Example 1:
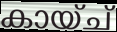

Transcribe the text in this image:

കായ്ച്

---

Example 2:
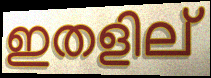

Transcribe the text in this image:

ഇതളില്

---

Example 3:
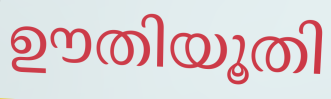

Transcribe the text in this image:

ഊതിയൂതി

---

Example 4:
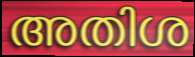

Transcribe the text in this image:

അതിശ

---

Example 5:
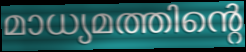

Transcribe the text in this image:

മാധ്യമത്തിന്റെ